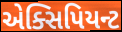
એક્સિપિયન્ટ